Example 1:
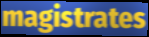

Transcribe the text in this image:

magistrates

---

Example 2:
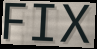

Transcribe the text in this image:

FIX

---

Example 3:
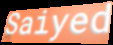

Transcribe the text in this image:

Saiyed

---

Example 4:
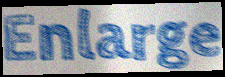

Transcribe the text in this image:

Enlarge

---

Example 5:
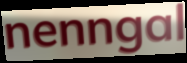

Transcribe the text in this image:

nenngal